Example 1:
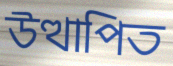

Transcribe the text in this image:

উত্থাপিত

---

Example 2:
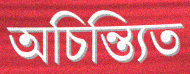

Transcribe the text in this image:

অচিন্ত্যিত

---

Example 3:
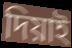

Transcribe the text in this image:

দিয়াই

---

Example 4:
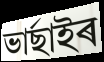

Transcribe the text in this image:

ভাৰ্ছাইৰ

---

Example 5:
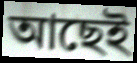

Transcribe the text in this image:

আছেই